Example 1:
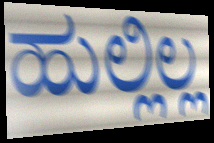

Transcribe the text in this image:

ಹುಲ್ಲಿಲ್ಲ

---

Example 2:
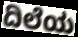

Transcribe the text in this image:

ದಿಲೆಯ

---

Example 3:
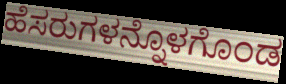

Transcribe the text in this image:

ಹೆಸರುಗಳನ್ನೊಳಗೊಂಡ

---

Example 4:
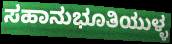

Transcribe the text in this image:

ಸಹಾನುಭೂತಿಯುಳ್ಳ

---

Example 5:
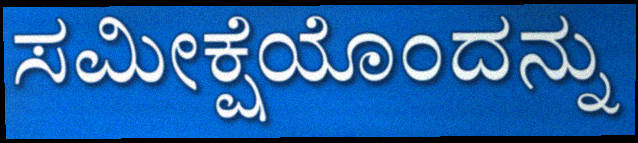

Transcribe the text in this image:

ಸಮೀಕ್ಷೆಯೊಂದನ್ನು